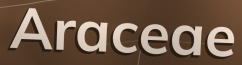
Araceae